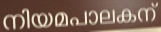
നിയമപാലകന്